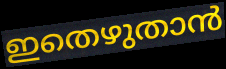
ഇതെഴുതാൻ